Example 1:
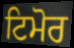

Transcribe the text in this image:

ਟਿਮੋਰ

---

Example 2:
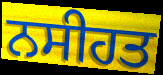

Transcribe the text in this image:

ਨਸੀਹਤ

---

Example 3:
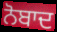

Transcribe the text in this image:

ਨੋਬਾਦ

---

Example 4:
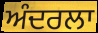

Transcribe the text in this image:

ਅੰਦਰਲਾ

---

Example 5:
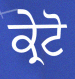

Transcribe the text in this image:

ਕ੍ਰੇਟੋ